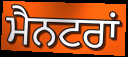
ਮੈਨਟਰਾਂ